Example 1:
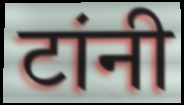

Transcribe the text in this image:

टांनी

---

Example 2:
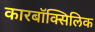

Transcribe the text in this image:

कारबॉक्सिलिक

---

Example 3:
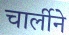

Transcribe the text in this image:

चार्लीने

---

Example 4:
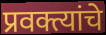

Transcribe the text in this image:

प्रवक्त्यांचे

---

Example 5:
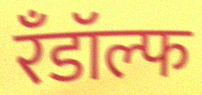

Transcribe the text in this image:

रँडॉल्फ